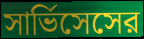
সার্ভিসেসের